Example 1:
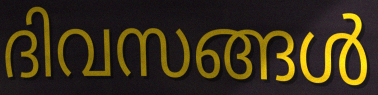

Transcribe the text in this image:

ദിവസങ്ങൾ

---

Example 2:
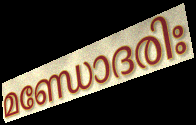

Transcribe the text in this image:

മണ്ഡോദരിഃ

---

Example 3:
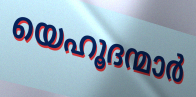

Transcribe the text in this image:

യെഹൂദന്മാർ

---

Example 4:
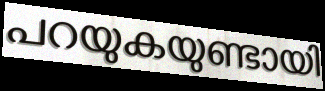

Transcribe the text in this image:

പറയുകയുണ്ടായി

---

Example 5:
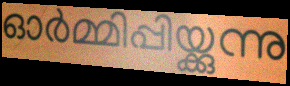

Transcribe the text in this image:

ഓർമ്മിപ്പിയ്ക്കുന്നു